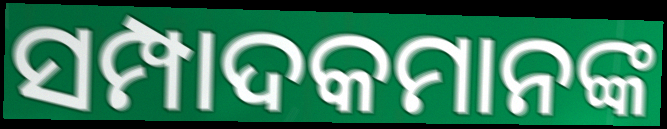
ସମ୍ପାଦକମାନଙ୍କ